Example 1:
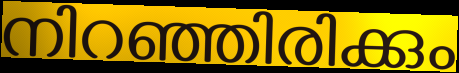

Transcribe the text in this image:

നിറഞ്ഞിരിക്കും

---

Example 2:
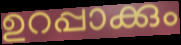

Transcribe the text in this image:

ഉറപ്പാക്കും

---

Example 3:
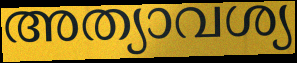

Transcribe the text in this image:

അത്യാവശ്യ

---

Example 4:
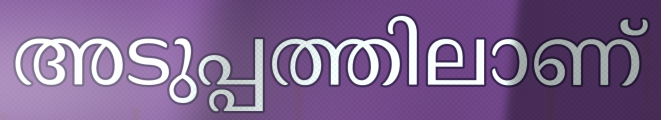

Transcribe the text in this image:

അടുപ്പത്തിലാണ്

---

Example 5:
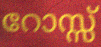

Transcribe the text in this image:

റോസ്സ്